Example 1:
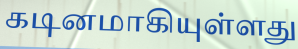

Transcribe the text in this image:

கடினமாகியுள்ளது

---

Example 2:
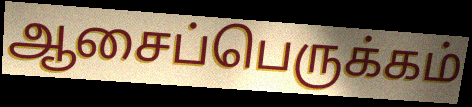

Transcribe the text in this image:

ஆசைப்பெருக்கம்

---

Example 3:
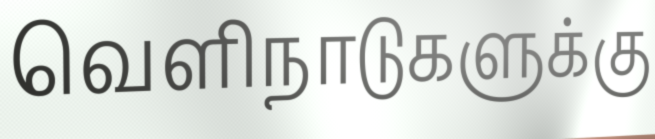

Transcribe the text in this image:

வெளிநாடுகளுக்கு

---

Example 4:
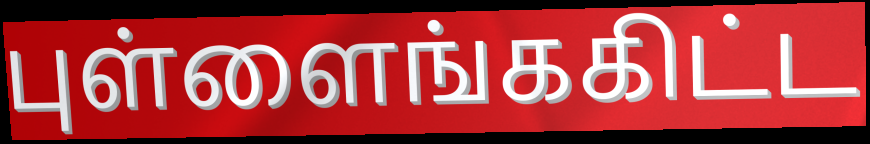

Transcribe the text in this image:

புள்ளைங்ககிட்ட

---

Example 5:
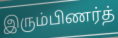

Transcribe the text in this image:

இரும்பிணர்த்